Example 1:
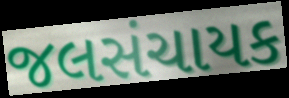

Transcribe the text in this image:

જલસંચાયક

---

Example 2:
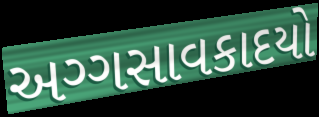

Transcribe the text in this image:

અગ્ગસાવકાદયો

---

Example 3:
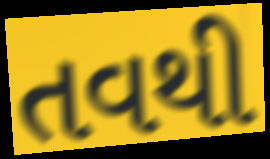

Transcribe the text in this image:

તવથી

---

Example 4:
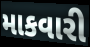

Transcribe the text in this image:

માકવારી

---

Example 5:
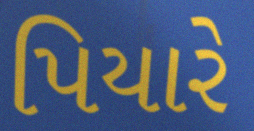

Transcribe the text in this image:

પિયારે